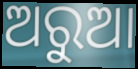
ଅରୁଆ